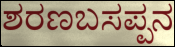
ಶರಣಬಸಪ್ಪನ